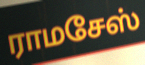
ராமசேஸ்